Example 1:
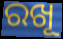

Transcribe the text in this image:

ରଖୂ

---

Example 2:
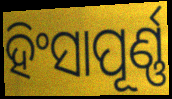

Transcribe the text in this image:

ହିଂସାପୂର୍ଣ୍ଣ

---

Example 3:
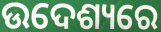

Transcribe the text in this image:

ଉଦେଶ୍ୟରେ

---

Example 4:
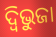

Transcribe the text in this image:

ଦ୍ବିଭୁଜା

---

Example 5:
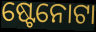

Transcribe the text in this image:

ଷ୍ଟେନୋଟା